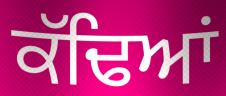
ਕੱਢਿਆਂ